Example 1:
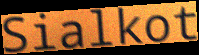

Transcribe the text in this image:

Sialkot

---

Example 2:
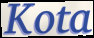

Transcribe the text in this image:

Kota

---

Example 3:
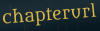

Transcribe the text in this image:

chapterurl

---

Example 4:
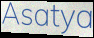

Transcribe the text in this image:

Asatya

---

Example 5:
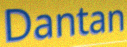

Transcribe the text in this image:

Dantan